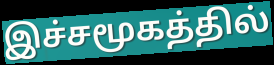
இச்சமூகத்தில்